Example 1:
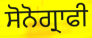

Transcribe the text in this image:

ਸੋਨੋਗ੍ਰਾਫੀ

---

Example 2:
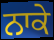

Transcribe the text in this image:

ਨਾਕੇ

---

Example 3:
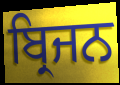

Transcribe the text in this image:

ਬ੍ਰਿਜਨ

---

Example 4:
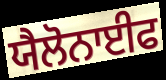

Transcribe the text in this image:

ਯੈਲੋਨਾਈਫ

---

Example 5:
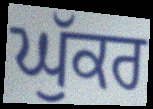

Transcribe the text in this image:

ਘੁੱਕਰ